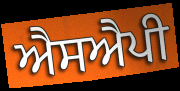
ਐਸਐਪੀ